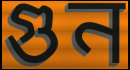
গুন